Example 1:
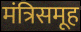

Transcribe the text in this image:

मंत्रिसमूह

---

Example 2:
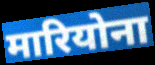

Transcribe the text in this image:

मारियोना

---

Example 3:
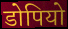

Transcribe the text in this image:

डोपियो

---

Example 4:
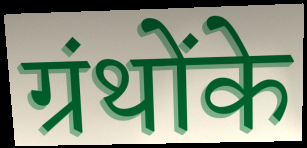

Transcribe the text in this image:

ग्रंथोंके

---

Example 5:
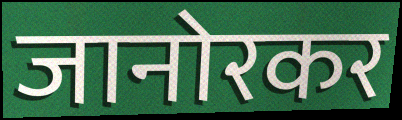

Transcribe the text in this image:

जानोरकर